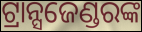
ଟ୍ରାନ୍ସଜେଣ୍ଡରଙ୍କ